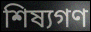
শিষ্যগণ